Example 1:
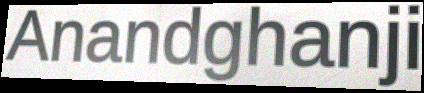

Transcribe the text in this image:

Anandghanji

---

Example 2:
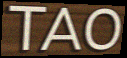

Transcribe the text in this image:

TAO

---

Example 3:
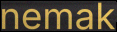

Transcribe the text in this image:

nemak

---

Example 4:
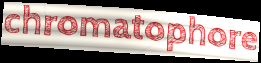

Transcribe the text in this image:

chromatophore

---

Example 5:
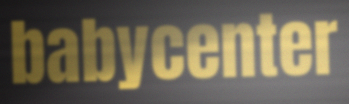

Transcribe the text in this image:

babycenter